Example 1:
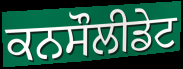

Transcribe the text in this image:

ਕਨਸੌਲੀਡੇਟ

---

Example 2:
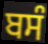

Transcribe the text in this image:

ਬਸੰ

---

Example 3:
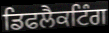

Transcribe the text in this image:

ਡਿਫਲੈਕਟਿੰਗ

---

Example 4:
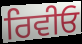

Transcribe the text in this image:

ਰਿਵੀਓ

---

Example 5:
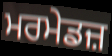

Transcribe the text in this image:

ਮਰਮੇਡਜ਼